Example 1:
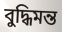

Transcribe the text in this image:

বুদ্ধিমন্ত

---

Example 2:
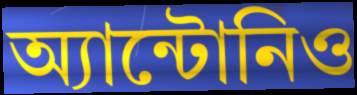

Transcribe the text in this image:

অ্যান্টোনিও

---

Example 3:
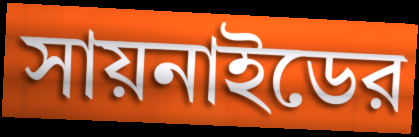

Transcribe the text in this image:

সায়নাইডের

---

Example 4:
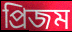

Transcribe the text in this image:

প্রিজম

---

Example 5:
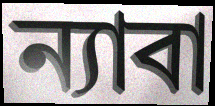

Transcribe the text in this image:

ন্যাবা